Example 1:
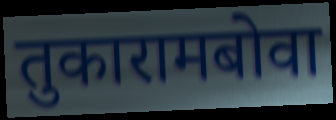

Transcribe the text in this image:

तुकारामबोवा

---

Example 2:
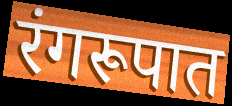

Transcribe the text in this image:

रंगरूपात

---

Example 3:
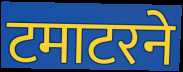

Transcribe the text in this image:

टमाटरने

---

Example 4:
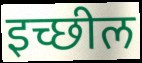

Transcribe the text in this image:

इच्छील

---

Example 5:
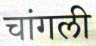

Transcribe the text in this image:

चांगली